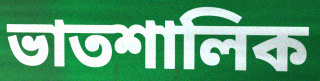
ভাতশালিক